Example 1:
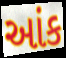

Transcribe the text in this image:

આંક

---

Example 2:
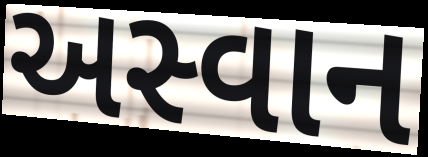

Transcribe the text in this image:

અસ્વાન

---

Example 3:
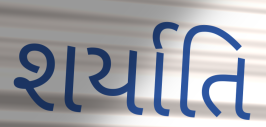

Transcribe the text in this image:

શર્યાતિ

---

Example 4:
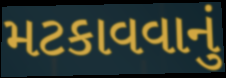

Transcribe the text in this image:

મટકાવવાનું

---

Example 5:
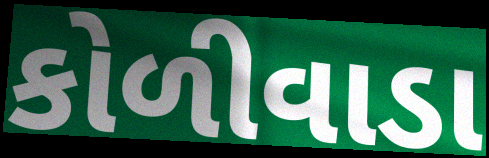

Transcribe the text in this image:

કોળીવાડા